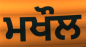
ਮਖੌਲ